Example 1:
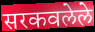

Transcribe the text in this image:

सरकवलेले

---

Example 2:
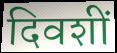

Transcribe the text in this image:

दिवशीं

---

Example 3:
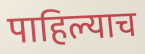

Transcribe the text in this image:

पाहिल्याच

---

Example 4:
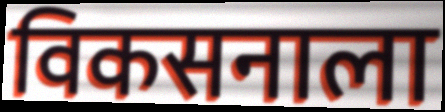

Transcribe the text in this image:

विकसनाला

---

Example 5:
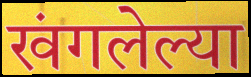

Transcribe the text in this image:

खंगलेल्या